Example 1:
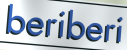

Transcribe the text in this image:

beriberi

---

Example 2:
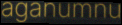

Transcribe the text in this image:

aganumnu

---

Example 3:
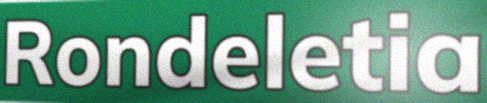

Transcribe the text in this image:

Rondeletia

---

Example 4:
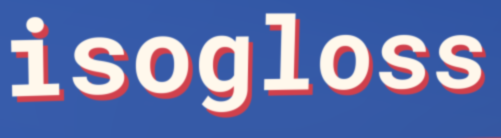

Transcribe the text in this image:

isogloss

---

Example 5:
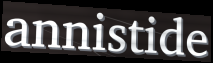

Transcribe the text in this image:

annistide